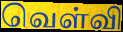
வெள்வி